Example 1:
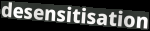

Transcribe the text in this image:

desensitisation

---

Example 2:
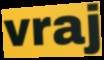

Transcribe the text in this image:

vraj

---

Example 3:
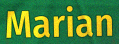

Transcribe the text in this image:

Marian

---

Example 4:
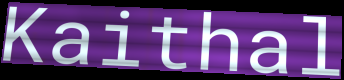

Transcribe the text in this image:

Kaithal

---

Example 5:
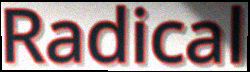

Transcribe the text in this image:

Radical